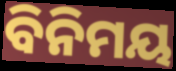
ବିନିମୟ